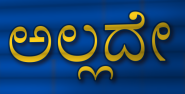
ಅಲ್ಲದೇ